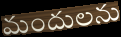
మందులను